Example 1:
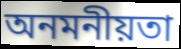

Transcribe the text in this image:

অনমনীয়তা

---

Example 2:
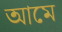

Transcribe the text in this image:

আমে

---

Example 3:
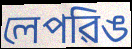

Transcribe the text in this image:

লেপৱিঙ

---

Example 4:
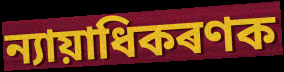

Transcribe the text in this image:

ন্যায়াধিকৰণক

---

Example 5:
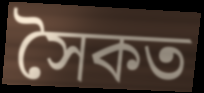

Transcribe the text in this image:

সৈকত